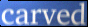
carved